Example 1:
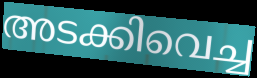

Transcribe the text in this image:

അടക്കിവെച്ച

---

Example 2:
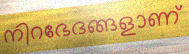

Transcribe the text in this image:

നിറഭേദങ്ങളാണ്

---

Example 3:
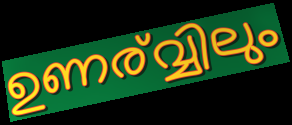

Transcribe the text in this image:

ഉണര്വ്വിലും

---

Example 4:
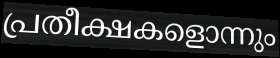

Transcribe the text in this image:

പ്രതീക്ഷകളൊന്നും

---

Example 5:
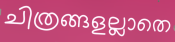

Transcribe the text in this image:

ചിത്രങ്ങളല്ലാതെ